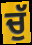
ਚੁੱ